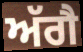
ਅੱਗੈ